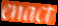
enact